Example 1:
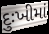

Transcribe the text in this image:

દુઃખીમાં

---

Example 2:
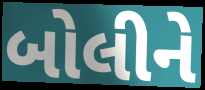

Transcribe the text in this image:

બોલીને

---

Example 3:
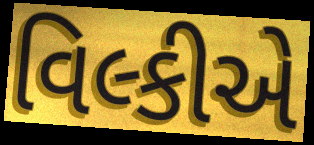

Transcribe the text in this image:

વિલ્કીએ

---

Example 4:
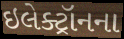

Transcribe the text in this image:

ઇલેક્ટ્રૉનના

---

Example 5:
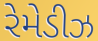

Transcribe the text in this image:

રેમેડીઝ